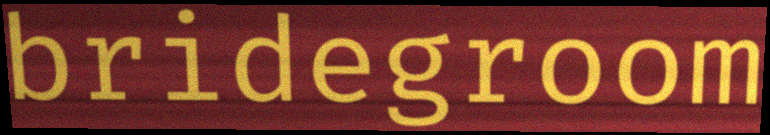
bridegroom